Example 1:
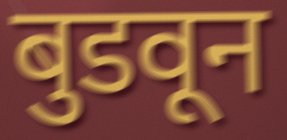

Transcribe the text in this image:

बुडवून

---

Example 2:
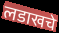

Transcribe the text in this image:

लडाखचे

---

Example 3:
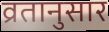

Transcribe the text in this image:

व्रतानुसार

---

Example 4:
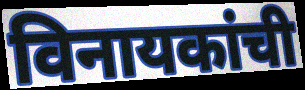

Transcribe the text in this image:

विनायकांची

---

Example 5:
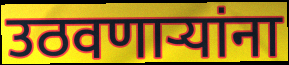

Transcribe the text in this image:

उठवणाऱ्यांना